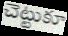
చెట్టుకూ